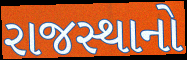
રાજસ્થાનો